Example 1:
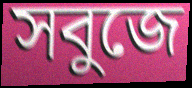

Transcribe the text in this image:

সবুজে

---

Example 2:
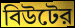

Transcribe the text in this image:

বিউটের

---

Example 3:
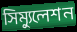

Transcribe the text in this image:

সিম্যুলেশন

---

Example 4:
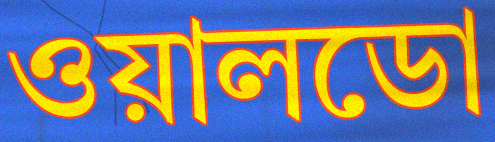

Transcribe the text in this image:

ওয়ালডো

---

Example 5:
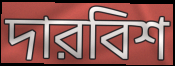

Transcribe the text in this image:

দারবিশ